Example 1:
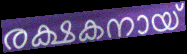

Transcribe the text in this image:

രക്ഷകനായ്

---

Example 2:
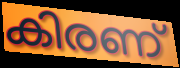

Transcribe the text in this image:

കിരണ്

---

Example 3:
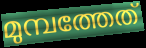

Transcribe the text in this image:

മുമ്പത്തേത്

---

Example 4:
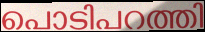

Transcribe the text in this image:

പൊടിപറത്തി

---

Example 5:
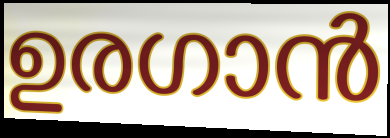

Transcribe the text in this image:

ഉരഗാൻ